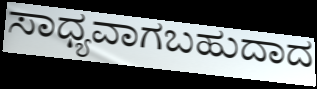
ಸಾಧ್ಯವಾಗಬಹುದಾದ